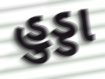
હુડ્ડા